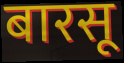
बारसू